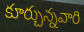
కూర్చున్నవారి